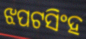
ଝପଟସିଂହ